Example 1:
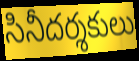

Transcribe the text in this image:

సినీదర్శకులు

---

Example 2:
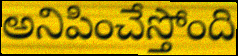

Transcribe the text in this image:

అనిపించేస్తోంది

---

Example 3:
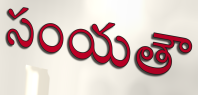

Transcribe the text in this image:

సంయతౌ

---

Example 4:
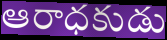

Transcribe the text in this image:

ఆరాధకుడు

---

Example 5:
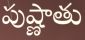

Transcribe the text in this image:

పుష్ణాతు